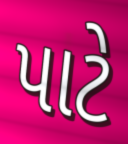
પાટે